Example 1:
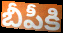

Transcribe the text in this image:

బీపీకి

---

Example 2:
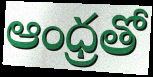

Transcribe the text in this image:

ఆంధ్రతో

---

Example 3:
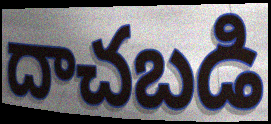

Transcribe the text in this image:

దాచబడి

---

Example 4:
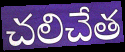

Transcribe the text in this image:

చలిచేత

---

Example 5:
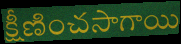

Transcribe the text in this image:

క్షీణించసాగాయి